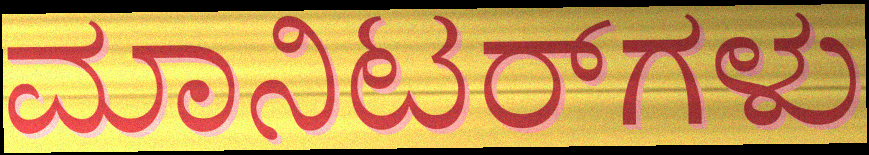
ಮಾನಿಟರ್‌ಗಳು